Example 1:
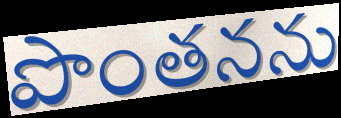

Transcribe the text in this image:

పొంతనను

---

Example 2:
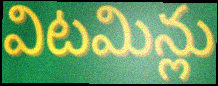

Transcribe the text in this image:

విటమిన్లు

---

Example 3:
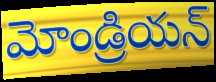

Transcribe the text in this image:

మోండ్రియన్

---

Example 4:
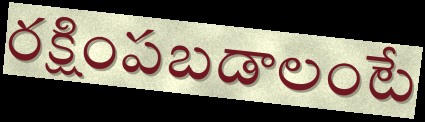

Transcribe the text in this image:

రక్షింపబడాలంటే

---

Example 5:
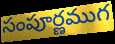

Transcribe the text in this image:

సంపూర్ణముగ